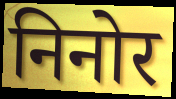
निनोर